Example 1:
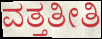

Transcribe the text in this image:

ವತ್ತತೀತಿ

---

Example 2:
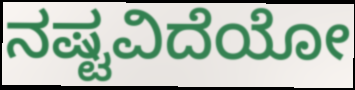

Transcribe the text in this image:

ನಷ್ಟವಿದೆಯೋ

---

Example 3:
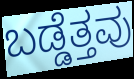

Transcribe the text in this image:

ಬಡ್ಡೆತ್ತವು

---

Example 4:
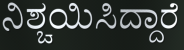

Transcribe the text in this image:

ನಿಶ್ಚಯಿಸಿದ್ದಾರೆ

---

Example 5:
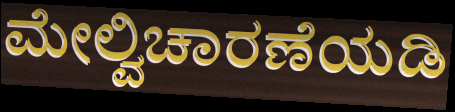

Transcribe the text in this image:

ಮೇಲ್ವಿಚಾರಣೆಯಡಿ